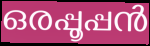
ഒരപ്പൂപ്പൻ